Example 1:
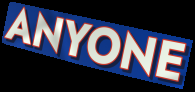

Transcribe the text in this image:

ANYONE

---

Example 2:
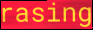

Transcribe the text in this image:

rasing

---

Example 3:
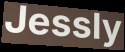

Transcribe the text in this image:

Jessly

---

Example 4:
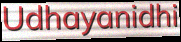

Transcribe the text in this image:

Udhayanidhi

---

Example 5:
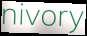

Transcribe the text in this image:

nivory